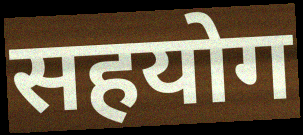
सहयोग